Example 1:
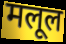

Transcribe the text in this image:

मलूल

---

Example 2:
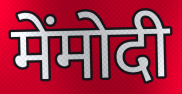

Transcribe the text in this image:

मेंमोदी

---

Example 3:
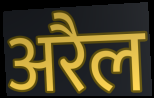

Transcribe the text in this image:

अरैल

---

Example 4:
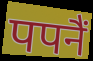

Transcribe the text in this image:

पपनैं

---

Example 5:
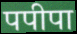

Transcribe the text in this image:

पपीपा